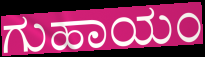
ಗುಹಾಯಂ